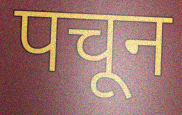
पचून